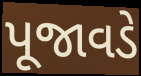
પૂજાવડે